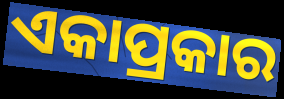
ଏକାପ୍ରକାର